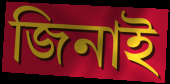
জিনাই